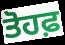
ਤੋਹਫ਼